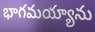
భాగమయ్యాను